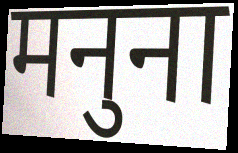
मनुना